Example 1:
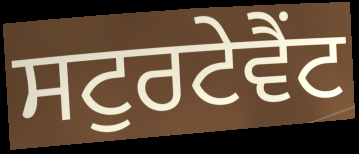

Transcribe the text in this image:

ਸਟੁਰਟੇਵੈਂਟ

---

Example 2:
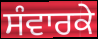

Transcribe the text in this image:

ਸੰਵਾਰਕੇ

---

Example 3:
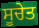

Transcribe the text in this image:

ਸੂਚੇਤ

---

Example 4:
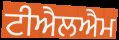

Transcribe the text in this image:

ਟੀਐਲਐਮ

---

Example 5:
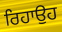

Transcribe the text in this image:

ਰਿਹਾਉਹ